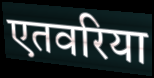
एतवरिया